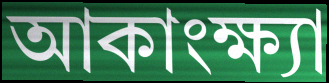
আকাংক্ষ্যা